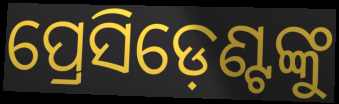
ପ୍ରେସିଡ଼େଣ୍ଟଙ୍କୁ